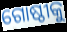
ଗୋଷ୍ଠୀକୁ